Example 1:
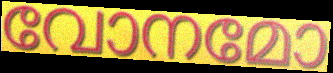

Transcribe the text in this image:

വോനമോ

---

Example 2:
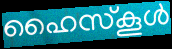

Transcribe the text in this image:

ഹൈസ്കൂൾ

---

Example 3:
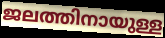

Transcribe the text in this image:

ജലത്തിനായുള്ള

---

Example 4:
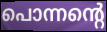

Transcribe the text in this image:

പൊന്നന്റെ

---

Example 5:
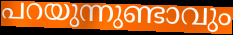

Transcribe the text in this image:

പറയുന്നുണ്ടാവും